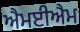
ਐਮਈਐਮ